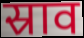
स्राव